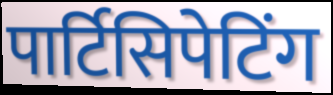
पार्टिसिपेटिंग